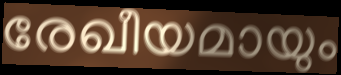
രേഖീയമായും